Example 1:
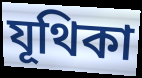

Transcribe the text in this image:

যূথিকা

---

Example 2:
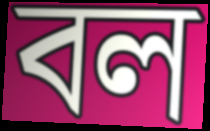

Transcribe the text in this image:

বল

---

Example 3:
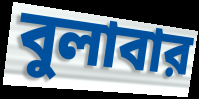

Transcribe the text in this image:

বুলাবার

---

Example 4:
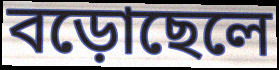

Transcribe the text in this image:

বড়োছেলে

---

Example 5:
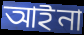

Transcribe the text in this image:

আইনা